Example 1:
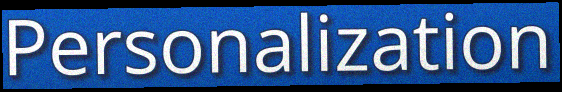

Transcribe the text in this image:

Personalization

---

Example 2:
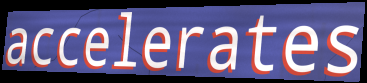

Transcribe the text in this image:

accelerates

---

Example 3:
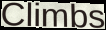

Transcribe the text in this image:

Climbs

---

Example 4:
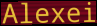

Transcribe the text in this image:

Alexei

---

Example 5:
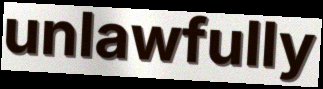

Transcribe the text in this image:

unlawfully